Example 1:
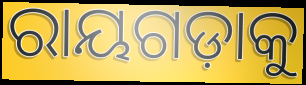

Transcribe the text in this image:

ରାୟଗଡ଼ାକୁ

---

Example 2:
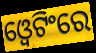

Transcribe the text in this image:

ଓ୍ୱେଟିଂରେ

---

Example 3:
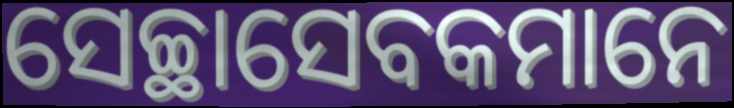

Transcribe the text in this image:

ସେଚ୍ଛାସେବକମାନେ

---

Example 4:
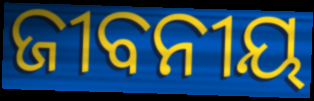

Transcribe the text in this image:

ଜୀବନୀୟ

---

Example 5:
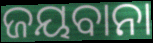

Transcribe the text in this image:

ଜୟବାନା